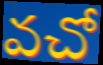
వచో